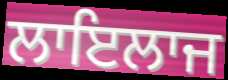
ਲਾਇਲਾਜ